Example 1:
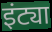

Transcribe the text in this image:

इंट्या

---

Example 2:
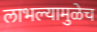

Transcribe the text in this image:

लाभल्यामुळेच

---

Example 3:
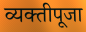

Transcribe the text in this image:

व्यक्तीपूजा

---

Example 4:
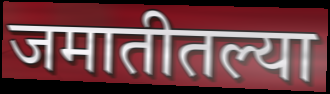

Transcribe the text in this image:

जमातीतल्या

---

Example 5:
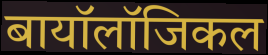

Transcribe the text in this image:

बायॉलॉजिकल